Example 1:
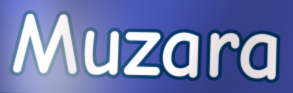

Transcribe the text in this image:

Muzara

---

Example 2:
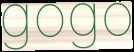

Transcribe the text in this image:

gogo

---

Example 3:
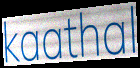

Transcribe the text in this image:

kaathal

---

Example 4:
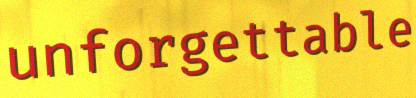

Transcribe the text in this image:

unforgettable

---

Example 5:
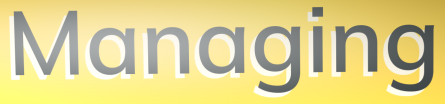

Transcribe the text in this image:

Managing